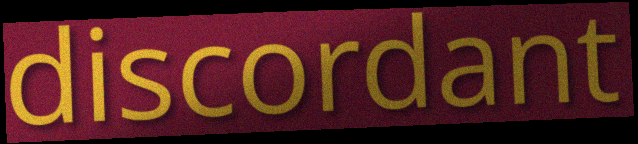
discordant